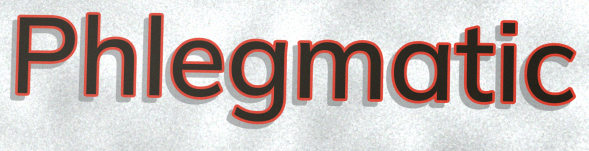
Phlegmatic